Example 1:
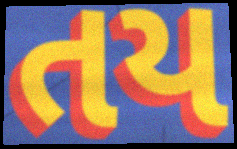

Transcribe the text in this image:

તય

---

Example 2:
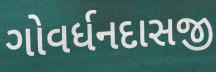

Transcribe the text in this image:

ગોવર્ધનદાસજી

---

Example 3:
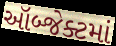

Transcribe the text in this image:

ઑબ્જેક્ટમાં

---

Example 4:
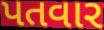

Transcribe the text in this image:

પતવાર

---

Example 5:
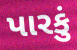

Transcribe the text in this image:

પારકું